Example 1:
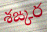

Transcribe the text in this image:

శఙ్కర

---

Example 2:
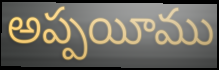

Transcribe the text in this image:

అప్పయీము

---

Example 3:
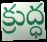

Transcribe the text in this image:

క్రుద్ధ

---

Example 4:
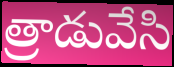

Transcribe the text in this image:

త్రాడువేసి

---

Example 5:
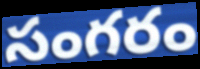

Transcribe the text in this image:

సంగరం